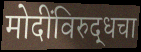
मोदींविरुद्धचा